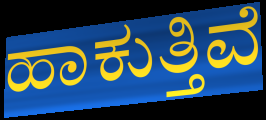
ಹಾಕುತ್ತಿವೆ